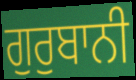
ਗੁਰੁਬਾਨੀ